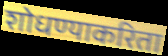
शोधण्याकरिता